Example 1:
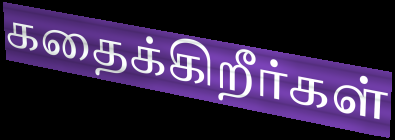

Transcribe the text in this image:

கதைக்கிறீர்கள்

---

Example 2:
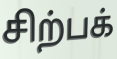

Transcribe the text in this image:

சிற்பக்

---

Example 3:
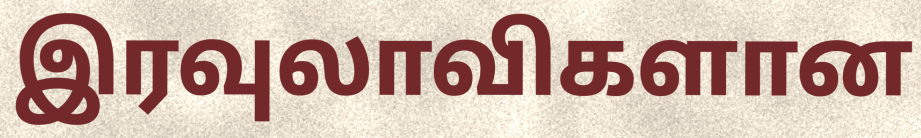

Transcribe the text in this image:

இரவுலாவிகளான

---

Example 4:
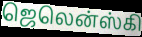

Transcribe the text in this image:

ஜெலென்ஸ்கி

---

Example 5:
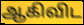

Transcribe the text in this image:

ஆகிவிட